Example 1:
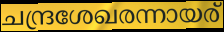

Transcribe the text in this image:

ചന്ദ്രശേഖരന്നായര്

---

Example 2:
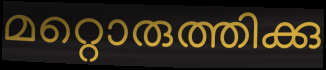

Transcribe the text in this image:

മറ്റൊരുത്തിക്കു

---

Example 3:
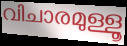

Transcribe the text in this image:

വിചാരമുള്ളൂ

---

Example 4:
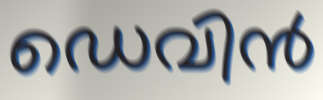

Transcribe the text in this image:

ഡെവിൻ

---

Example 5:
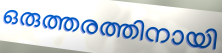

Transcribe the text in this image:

ഒരുത്തരത്തിനായി